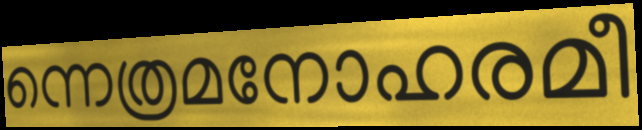
ന്നെത്രമനോഹരമീ